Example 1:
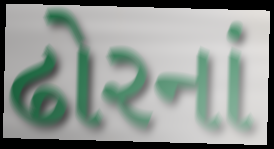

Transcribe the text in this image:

ઢોરનાં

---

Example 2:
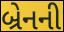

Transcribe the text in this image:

બ્રેનની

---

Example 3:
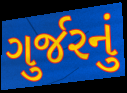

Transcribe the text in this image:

ગુર્જરનું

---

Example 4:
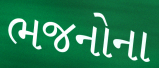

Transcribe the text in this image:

ભજનોના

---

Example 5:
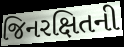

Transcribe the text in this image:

જિનરક્ષિતની